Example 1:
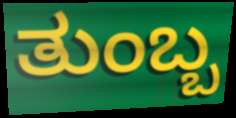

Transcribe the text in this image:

ತುಂಬ್ಬ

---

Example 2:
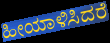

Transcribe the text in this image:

ಹೀಯಾಳಿಸಿದರೆ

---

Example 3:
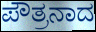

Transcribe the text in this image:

ಪೌತ್ರನಾದ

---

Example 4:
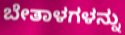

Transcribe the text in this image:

ಬೇತಾಳಗಳನ್ನು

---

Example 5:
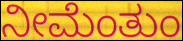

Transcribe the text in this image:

ನೀಮೆಂತುಂ